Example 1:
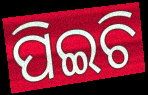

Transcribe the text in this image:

ପିଇଚି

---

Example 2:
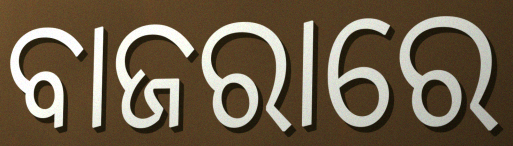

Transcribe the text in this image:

ବାଜରାରେ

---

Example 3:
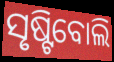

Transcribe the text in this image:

ସୃଷ୍ଟିବୋଲି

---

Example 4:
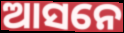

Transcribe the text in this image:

ଆସନେ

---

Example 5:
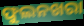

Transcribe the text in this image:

ଫୁଲନଖରା